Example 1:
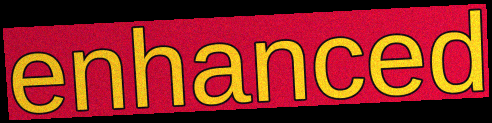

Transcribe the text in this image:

enhanced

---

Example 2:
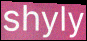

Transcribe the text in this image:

shyly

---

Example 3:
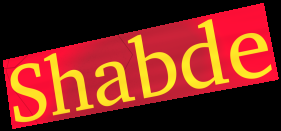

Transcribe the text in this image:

Shabde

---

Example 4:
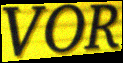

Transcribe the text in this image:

VOR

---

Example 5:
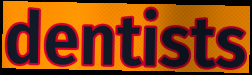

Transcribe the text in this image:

dentists